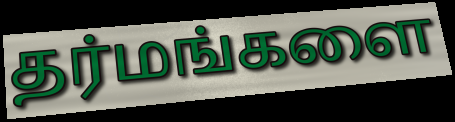
தர்மங்களை